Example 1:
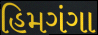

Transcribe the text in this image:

હિમગંગા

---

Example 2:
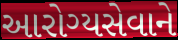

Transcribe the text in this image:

આરોગ્યસેવાને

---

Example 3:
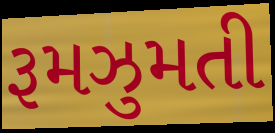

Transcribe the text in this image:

રૂમઝુમતી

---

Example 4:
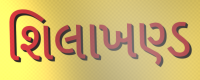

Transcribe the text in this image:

શિલાખણ્ડ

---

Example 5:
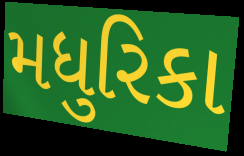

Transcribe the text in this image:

મધુરિકા